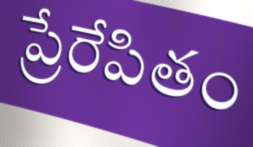
ప్రేరేపితం